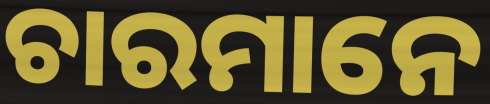
ଚାରମାନେ